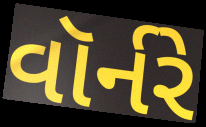
વૉર્નરે